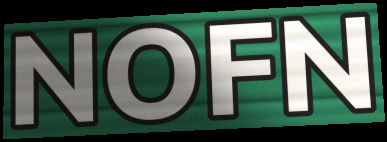
NOFN